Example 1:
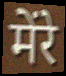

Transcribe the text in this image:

मेंरे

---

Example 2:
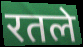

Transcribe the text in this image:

रतले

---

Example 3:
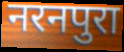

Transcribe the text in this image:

नरनपुरा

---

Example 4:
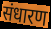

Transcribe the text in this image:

संधारण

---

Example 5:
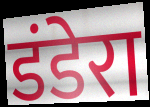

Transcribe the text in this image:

डंडेरा